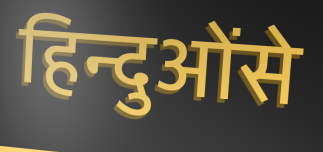
हिन्दुओंसे